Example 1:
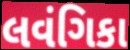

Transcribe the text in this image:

લવંગિકા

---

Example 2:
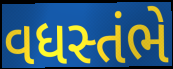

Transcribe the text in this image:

વધસ્તંભે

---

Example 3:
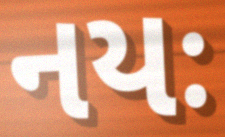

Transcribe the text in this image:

નયઃ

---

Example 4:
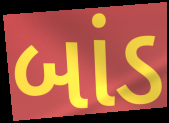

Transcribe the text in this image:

બાંડ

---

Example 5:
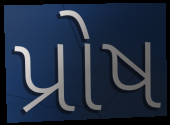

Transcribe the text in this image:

પ્રોષ